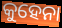
କୁହେନା